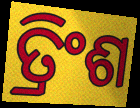
ତ୍ରିଂଶ